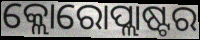
କ୍ଲୋରୋପ୍ଲାଷ୍ଟର